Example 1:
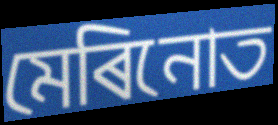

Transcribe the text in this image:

মেৰিনোত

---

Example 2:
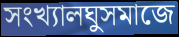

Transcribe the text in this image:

সংখ্যালঘুসমাজে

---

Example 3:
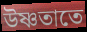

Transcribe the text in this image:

উষ্ণতাতে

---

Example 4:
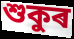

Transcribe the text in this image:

শুকুৰ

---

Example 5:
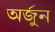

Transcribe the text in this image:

অৰ্জুন